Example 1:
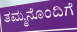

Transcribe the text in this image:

ತಮ್ಮನೊಂದಿಗೆ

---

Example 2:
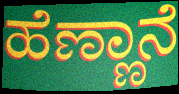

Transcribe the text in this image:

ಹೆಣ್ಣಾನೆ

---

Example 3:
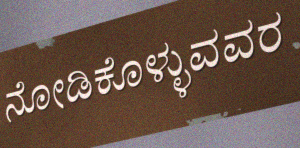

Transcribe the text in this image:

ನೋಡಿಕೊಳ್ಳುವವರ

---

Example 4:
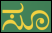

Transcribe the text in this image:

ಸೂ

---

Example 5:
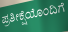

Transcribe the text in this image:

ಪ್ರತೀಕ್ಷೆಯೊಂದಿಗೆ